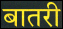
बातरी